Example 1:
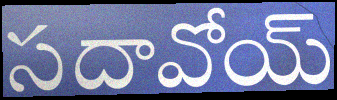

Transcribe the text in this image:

సదావోయ్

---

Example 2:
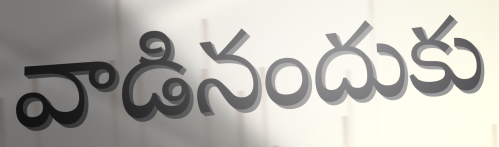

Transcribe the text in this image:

వాడినందుకు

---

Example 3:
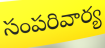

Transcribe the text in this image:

సంపరివార్య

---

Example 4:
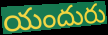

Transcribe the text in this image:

యందురు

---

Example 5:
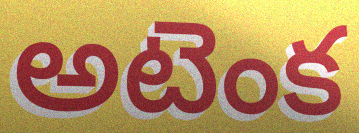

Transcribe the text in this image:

అటెంక